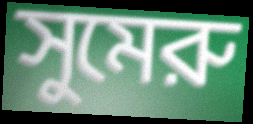
সুমেৰু